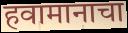
हवामानाचा